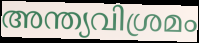
അന്ത്യവിശ്രമം